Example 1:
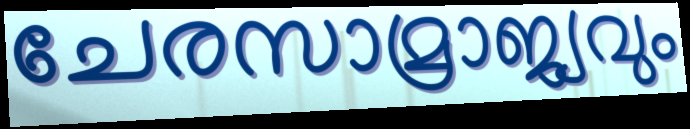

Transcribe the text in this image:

ചേരസാമ്രാജ്യവും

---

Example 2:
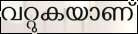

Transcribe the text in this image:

വറ്റുകയാണ്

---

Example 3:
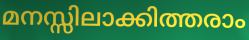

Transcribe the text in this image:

മനസ്സിലാക്കിത്തരാം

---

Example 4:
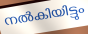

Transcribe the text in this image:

നൽകിയിട്ടും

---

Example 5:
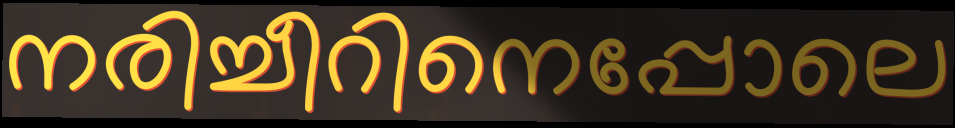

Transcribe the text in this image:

നരിച്ചീറിനെപ്പോലെ